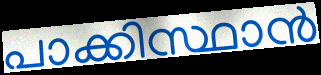
പാക്കിസ്ഥാൻ